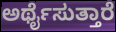
ಅರ್ಥೈಸುತ್ತಾರೆ